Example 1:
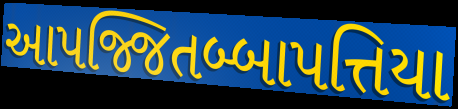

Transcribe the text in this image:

આપજ્જિતબ્બાપત્તિયા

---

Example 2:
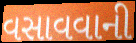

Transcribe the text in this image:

વસાવવાની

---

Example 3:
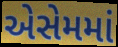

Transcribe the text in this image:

એસેમમાં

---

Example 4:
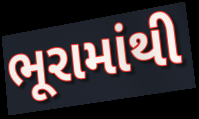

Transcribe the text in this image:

ભૂરામાંથી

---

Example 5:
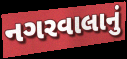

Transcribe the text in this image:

નગરવાલાનું